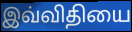
இவ்விதியை